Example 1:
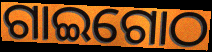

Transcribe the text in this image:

ଗାଇଗୋଠ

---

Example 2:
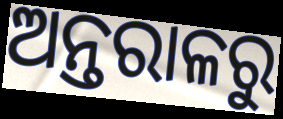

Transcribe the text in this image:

ଅନ୍ତରାଳରୁ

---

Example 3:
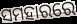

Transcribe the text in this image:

ସମହାରରେ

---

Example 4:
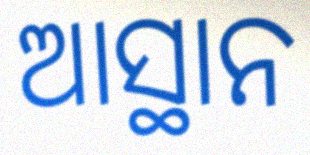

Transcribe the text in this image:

ଆସ୍ଥାନ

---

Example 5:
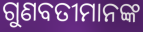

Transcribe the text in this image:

ଗୁଣବତୀମାନଙ୍କ